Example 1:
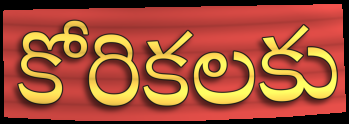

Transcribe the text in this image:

కోరికలకు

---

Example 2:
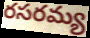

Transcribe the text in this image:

రసరమ్య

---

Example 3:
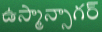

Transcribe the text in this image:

ఉస్మాన్సాగర్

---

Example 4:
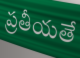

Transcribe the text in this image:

ప్రతీయతే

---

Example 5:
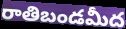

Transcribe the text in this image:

రాతిబండమీద